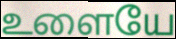
உளையே